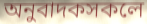
অনুবাদকসকলে